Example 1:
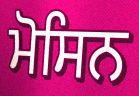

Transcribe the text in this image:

ਮੋਸਿਨ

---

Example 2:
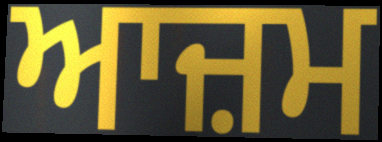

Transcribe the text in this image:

ਆਜ਼ਮ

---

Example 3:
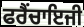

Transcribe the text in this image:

ਫਰੈਂਚਾਇਜੀ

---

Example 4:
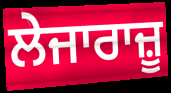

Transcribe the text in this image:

ਲੇਜਾਰਾਜ਼ੂ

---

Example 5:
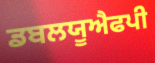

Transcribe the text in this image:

ਡਬਲਯੂਐਫਪੀ